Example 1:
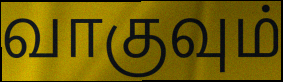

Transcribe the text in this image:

வாகுவும்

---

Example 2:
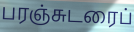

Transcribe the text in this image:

பரஞ்சுடரைப்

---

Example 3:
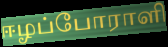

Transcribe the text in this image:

ஈழப்போராளி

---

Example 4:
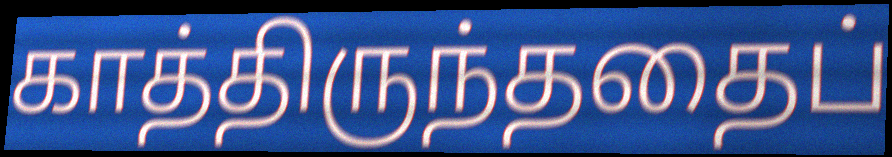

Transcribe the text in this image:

காத்திருந்ததைப்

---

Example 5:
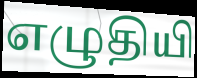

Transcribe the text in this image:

எழுதியி